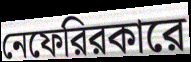
নেফেরিরকারে